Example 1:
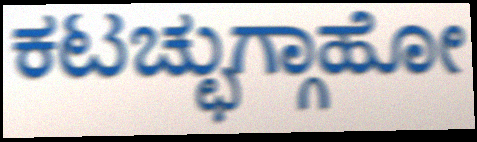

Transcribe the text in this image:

ಕಟಚ್ಛುಗ್ಗಾಹೋ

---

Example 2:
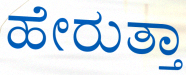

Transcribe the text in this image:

ಹೇರುತ್ತಾ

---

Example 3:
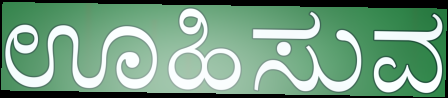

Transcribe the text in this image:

ಊಹಿಸುವ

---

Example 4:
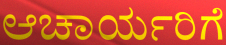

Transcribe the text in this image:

ಆಚಾರ್ಯರಿಗೆ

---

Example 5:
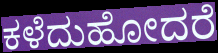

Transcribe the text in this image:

ಕಳೆದುಹೋದರೆ